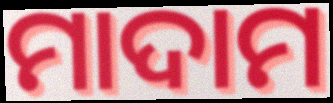
ମାଦାମ